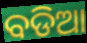
ବଡିଆ